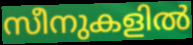
സീനുകളിൽ